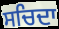
ਸਚਿਦਾ